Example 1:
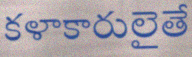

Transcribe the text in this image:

కళాకారులైతే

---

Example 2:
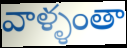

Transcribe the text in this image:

వాళ్ళంతా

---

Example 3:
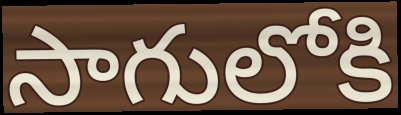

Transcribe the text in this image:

సాగులోకి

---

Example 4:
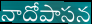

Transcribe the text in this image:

నాదోపాసన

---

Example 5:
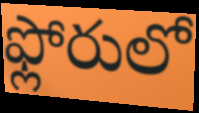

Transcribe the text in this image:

ఫ్లోరులో